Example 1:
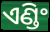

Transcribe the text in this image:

ଏଣ୍ଡିଂ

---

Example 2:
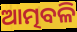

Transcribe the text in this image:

ଆତ୍ମବଳି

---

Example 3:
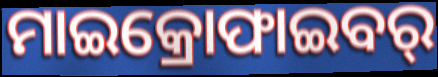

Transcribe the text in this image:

ମାଇକ୍ରୋଫାଇବର୍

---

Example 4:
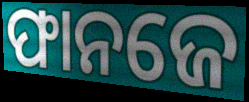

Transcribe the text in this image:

ଫାନଜେ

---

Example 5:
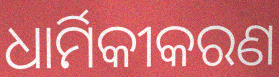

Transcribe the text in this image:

ଧାର୍ମିକୀକରଣ